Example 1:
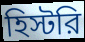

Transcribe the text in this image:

হিস্টরি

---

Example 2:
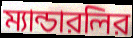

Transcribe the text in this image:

ম্যান্ডারলির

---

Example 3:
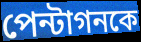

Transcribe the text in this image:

পেন্টাগনকে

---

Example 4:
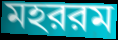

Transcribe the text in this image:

মহররম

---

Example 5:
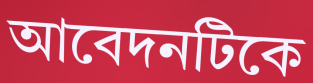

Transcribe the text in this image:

আবেদনটিকে